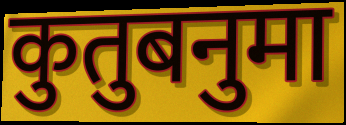
कुतुबनुमा